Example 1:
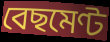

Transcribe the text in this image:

বেছমেণ্ট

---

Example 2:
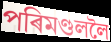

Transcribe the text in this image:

পৰিমণ্ডললৈ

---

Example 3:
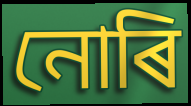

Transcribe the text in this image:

নোৰি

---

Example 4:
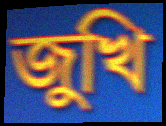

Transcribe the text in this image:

জুখি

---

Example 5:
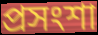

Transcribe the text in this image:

প্ৰসংশা